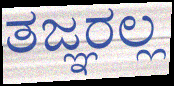
ತಜ್ಞರಲ್ಲ